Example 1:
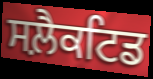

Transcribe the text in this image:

ਸਲ਼ੈਕਟਿਡ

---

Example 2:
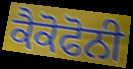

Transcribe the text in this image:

ਕੈਕੋਫੋਨੀ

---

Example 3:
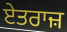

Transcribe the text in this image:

ਏਤਰਾਜ਼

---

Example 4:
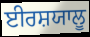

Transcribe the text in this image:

ਈਰਸ਼ਯਾਲੂ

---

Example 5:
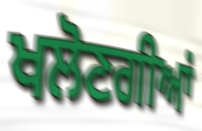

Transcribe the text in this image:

ਖਲੋਣਗੀਆਂ